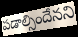
పడాల్సిందేనని